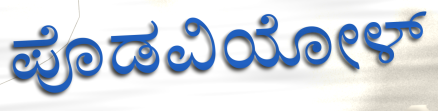
ಪೊಡವಿಯೋಳ್